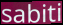
sabiti